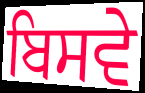
ਬਿਸਵੇ